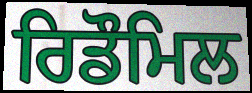
ਰਿਡੌਮਿਲ